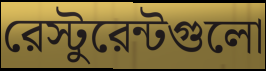
রেস্টুরেন্টগুলো